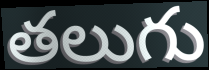
తలుగు